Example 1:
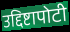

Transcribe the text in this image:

उद्दिष्टापोटी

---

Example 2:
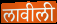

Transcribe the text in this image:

लावीली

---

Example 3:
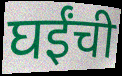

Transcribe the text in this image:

घईंची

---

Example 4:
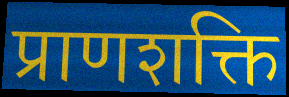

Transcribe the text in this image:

प्राणशक्ति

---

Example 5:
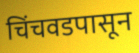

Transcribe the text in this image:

चिंचवडपासून